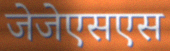
जेजेएसएस